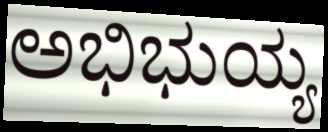
ಅಭಿಭುಯ್ಯ